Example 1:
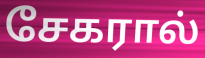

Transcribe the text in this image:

சேகரால்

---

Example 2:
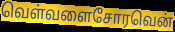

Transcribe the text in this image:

வெள்வளைசோரவென்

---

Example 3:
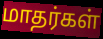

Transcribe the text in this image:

மாதர்கள்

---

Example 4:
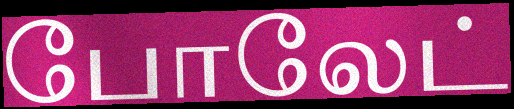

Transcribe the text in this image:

போலேட்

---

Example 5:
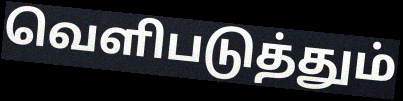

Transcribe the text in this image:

வெளிபடுத்தும்